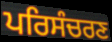
ਪਰਿਸੰਚਰਣ